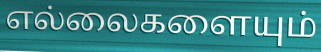
எல்லைகளையும்